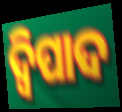
ଦ୍ୱିପାଦ